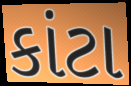
કાંટા